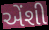
એંશી